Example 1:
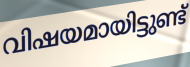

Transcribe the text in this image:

വിഷയമായിട്ടുണ്ട്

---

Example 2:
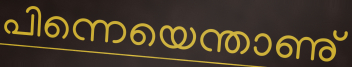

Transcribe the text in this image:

പിന്നെയെന്താണു്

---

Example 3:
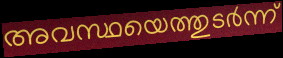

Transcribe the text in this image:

അവസ്ഥയെത്തുടർന്ന്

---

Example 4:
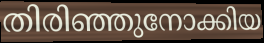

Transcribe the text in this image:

തിരിഞ്ഞുനോക്കിയ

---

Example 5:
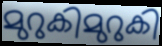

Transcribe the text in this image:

മുറുകിമുറുകി